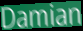
Damian